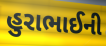
હુરાભાઈની